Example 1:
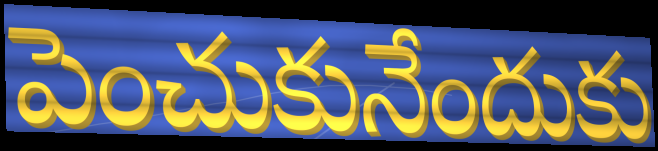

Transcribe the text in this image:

పెంచుకునేందుకు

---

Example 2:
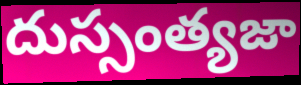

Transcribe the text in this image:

దుస్సంత్యజా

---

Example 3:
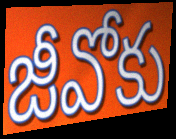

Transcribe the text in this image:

జీవోకు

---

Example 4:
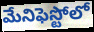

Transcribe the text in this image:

మేనిఫెస్టోలో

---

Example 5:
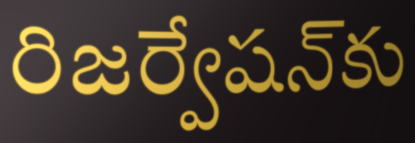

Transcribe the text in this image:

రిజర్వేషన్‌కు